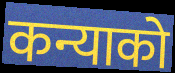
कन्याको